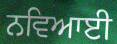
ਨਵਿਆਈ